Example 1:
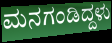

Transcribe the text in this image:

ಮನಗಂಡಿದ್ದಳು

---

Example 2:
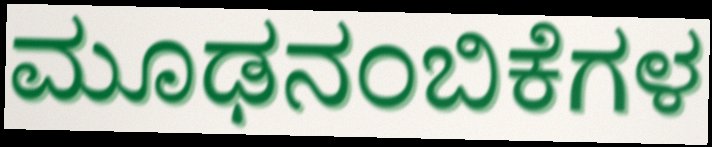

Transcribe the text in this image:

ಮೂಢನಂಬಿಕೆಗಳ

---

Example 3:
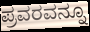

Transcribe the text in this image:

ಪ್ರವರವನ್ನೂ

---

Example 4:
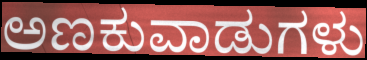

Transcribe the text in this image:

ಅಣಕುವಾಡುಗಳು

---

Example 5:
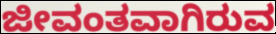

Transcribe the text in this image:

ಜೀವಂತವಾಗಿರುವ